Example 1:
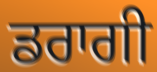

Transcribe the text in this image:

ਡਰਾਗੀ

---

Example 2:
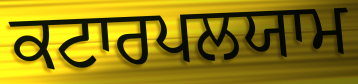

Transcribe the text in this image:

ਕਟਾਰਪਲਯਾਮ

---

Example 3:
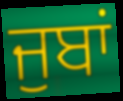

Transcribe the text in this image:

ਜੁਬਾਂ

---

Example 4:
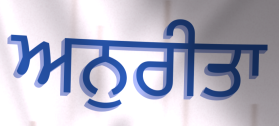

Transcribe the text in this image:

ਅਨੁਰੀਤਾ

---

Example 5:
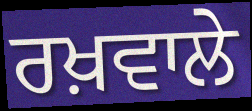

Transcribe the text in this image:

ਰਖ਼ਵਾਲੇ